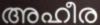
അഹീര